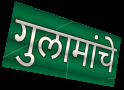
गुलामांचे